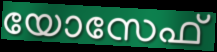
യോസേഫ്